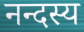
नन्दस्य